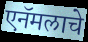
एनॅमलाचे